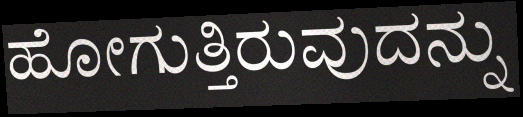
ಹೋಗುತ್ತಿರುವುದನ್ನು